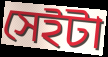
সেইটা